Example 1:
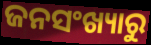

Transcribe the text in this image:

ଜନସଂଖ୍ୟାରୁ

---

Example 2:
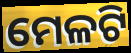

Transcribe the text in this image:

ମେଳଟି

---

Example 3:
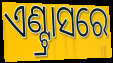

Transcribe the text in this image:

ଏଣ୍ଟ୍ରାସରେ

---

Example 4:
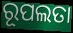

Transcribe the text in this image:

ରୂପଲତା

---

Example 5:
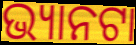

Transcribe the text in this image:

ଭ୍ୟାନଟା